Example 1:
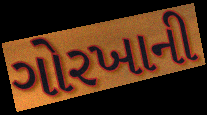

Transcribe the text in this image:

ગોરખાની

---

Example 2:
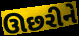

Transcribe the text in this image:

ઊછરીને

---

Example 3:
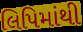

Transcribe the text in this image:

લિપિમાંથી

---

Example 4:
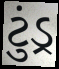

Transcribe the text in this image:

ટુંડ્ર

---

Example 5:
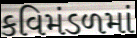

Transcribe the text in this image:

કવિમંડળમાં